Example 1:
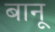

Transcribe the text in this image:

बानू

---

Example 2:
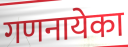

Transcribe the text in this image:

गणनायेका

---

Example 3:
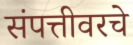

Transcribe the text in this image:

संपत्तीवरचे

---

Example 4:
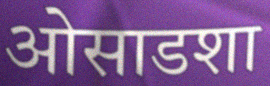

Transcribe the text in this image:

ओसाडशा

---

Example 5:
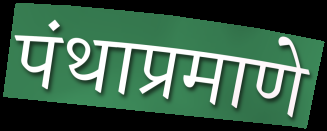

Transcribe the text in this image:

पंथाप्रमाणे